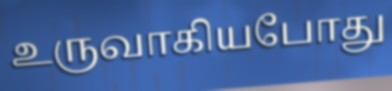
உருவாகியபோது